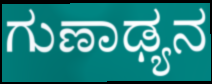
ಗುಣಾಢ್ಯನ